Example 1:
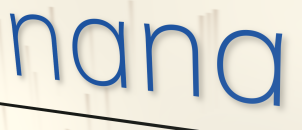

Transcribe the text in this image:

nana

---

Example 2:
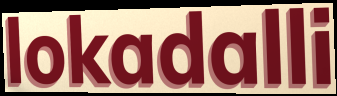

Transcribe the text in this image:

lokadalli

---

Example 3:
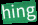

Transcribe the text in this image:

hing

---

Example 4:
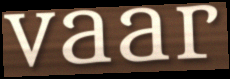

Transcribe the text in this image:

vaar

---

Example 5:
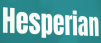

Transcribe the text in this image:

Hesperian